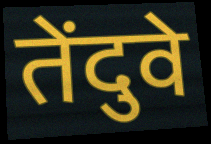
तेंदुवे